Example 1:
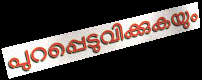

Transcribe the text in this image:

പുറപ്പെടുവിക്കുകയും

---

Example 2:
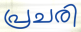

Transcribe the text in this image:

പ്രചരി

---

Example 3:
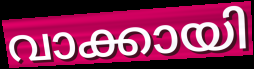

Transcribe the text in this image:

വാക്കായി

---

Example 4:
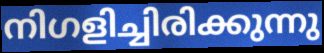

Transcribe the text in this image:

നിഗളിച്ചിരിക്കുന്നു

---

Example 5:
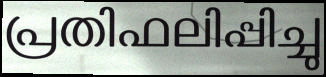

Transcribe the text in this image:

പ്രതിഫലിപ്പിച്ചു